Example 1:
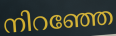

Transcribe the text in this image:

നിറഞ്ഞേ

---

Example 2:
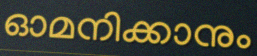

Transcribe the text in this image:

ഓമനിക്കാനും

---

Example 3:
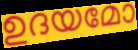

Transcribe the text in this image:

ഉദയമോ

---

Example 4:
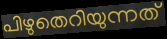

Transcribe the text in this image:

പിഴുതെറിയുന്നത്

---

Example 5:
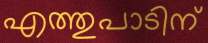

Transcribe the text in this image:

എത്തുപാടിന്